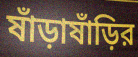
ষাঁড়াষাঁড়ির